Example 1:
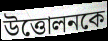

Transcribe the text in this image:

উত্তোলনকে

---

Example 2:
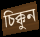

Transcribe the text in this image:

চিক্কুন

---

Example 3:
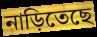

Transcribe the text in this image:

নাড়িতেছে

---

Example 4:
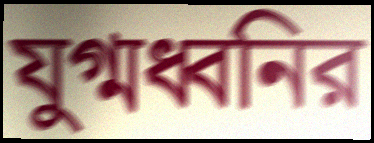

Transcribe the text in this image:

যুগ্মধ্বনির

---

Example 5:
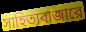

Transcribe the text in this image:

সাহিত্যবাজারে